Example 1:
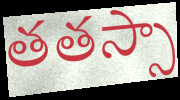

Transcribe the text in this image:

తతస్సా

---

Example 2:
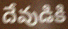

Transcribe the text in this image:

దేవుడికి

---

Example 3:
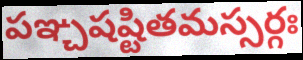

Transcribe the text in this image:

పఞ్చషష్టితమస్సర్గః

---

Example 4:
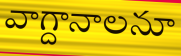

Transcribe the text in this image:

వాగ్దానాలనూ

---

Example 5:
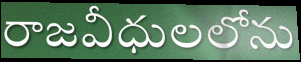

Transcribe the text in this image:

రాజవీధులలోను